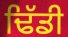
ਢਿੱਡੀ